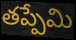
తప్పేమి